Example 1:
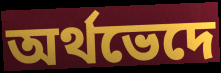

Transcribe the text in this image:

অর্থভেদে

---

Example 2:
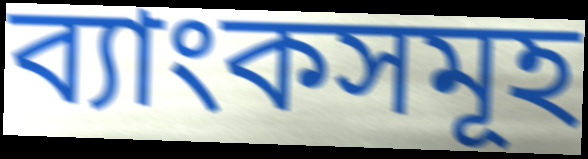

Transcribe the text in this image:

ব্যাংকসমূহ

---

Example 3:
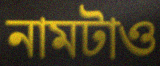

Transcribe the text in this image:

নামটাও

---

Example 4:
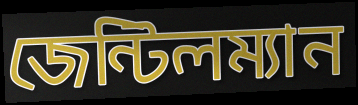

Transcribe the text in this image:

জেন্টিলম্যান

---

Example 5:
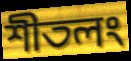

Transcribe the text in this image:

শীতলং